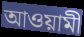
আওয়ামী